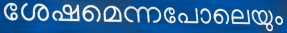
ശേഷമെന്നപോലെയും